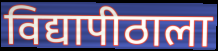
विद्यापीठाला